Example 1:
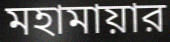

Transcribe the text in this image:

মহামায়ার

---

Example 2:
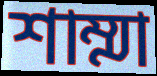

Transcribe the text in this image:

শাম্মা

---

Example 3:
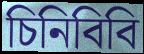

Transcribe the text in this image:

চিনিবিবি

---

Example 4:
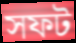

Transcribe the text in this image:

সফট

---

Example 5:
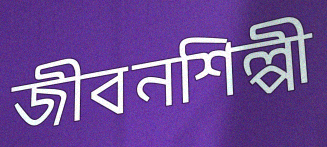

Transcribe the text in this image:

জীবনশিল্পী